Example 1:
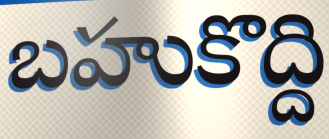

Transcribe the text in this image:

బహుకొద్ది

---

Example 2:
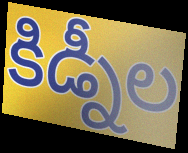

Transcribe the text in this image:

కిడ్నీల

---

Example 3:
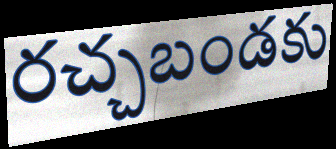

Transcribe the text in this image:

రచ్చబండకు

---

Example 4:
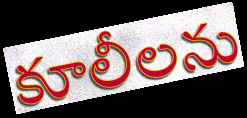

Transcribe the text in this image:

కూలీలను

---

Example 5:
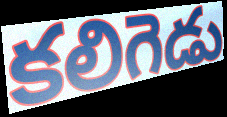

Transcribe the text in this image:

కలిగెడు